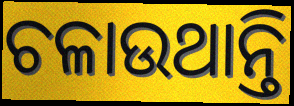
ଚଳାଉଥାନ୍ତି